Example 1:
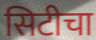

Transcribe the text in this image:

सिटीचा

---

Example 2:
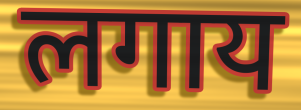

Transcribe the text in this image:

लगाय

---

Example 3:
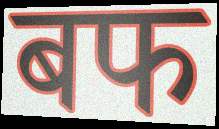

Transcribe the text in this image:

बफ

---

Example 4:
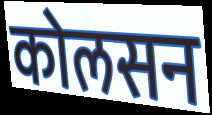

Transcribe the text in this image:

कोलसन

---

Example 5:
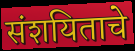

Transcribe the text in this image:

संशयिताचे